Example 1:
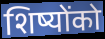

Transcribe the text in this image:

शिष्योंको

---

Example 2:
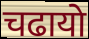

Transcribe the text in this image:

चढायो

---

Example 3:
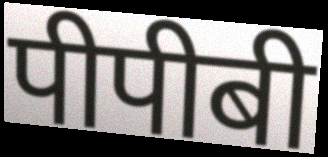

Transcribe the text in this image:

पीपीबी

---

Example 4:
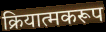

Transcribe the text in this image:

क्रियात्मकरूप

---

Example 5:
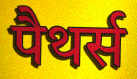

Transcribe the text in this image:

पैथर्स